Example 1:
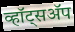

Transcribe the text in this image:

व्हॉट्सॲप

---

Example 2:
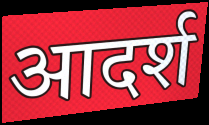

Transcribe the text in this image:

आदर्श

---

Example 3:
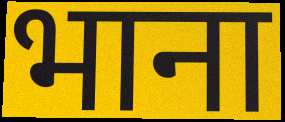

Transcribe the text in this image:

भाना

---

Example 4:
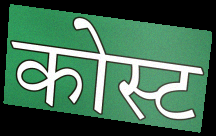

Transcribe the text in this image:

कोस्ट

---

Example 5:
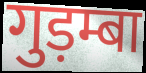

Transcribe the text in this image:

गुड़म्बा